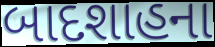
બાદશાહના